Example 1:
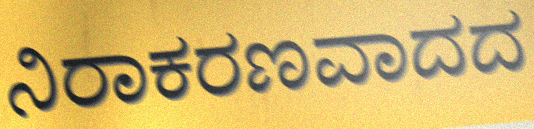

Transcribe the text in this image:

ನಿರಾಕರಣವಾದದ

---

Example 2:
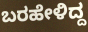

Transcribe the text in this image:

ಬರಹೇಳಿದ್ದ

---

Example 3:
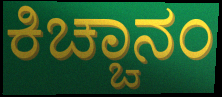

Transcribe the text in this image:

ಕಿಚ್ಚಾನಂ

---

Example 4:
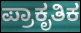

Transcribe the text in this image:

ಪ್ರಾಕೃತಿಕ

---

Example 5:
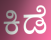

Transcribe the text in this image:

ಕಿಡೆ